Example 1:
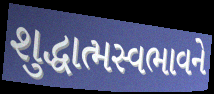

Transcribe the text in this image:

શુદ્ધાત્મસ્વભાવને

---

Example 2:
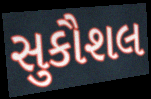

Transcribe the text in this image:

સુકૌશલ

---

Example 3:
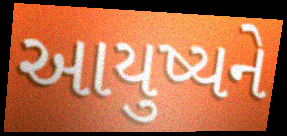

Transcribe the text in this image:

આયુષ્યને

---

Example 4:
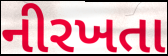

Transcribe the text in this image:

નીરખતા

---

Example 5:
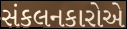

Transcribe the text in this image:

સંકલનકારોએ